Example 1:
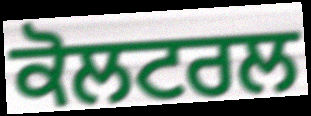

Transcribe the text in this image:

ਕੋਲਟਰਲ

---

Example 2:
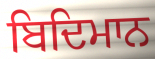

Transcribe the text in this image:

ਬਿਦਿਮਾਨ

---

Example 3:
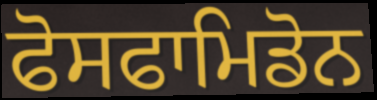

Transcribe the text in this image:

ਫੋਸਫਾਮਿਡੋਨ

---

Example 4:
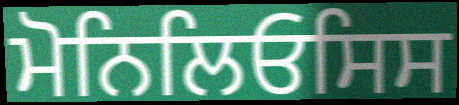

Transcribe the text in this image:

ਮੋਨਿਲਿਓਸਿਸ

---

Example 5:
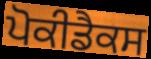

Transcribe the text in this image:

ਪੋਕੀਡੈਕਸ